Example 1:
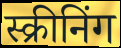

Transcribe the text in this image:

स्क्रीनिंग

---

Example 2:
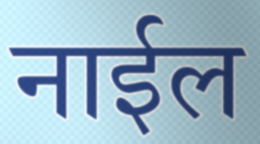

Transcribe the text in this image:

नाईल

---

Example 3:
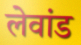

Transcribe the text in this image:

लेवांड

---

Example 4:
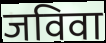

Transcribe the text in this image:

जविवा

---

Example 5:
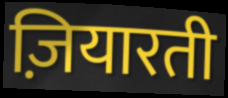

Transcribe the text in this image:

ज़ियारती